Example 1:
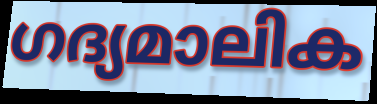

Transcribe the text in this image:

ഗദ്യമാലിക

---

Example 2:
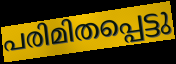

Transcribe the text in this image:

പരിമിതപ്പെട്ടു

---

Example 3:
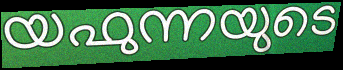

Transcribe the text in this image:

യഫുന്നയുടെ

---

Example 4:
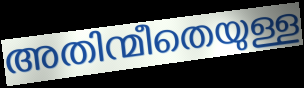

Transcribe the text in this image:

അതിന്മീതെയുള്ള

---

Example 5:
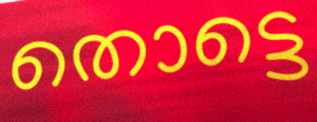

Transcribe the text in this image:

തൊട്ടെ